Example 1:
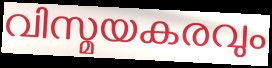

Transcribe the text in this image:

വിസ്മയകരവും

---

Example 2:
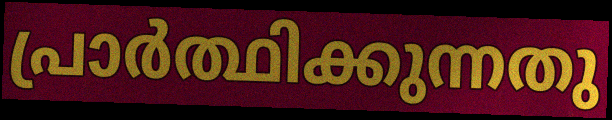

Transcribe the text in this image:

പ്രാർത്ഥിക്കുന്നതു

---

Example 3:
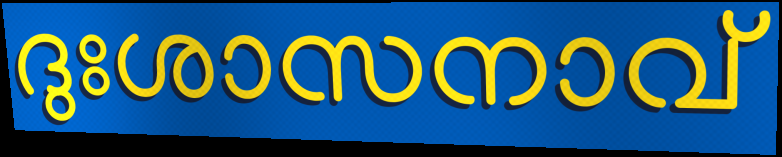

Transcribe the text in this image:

ദുഃശാസനാവ്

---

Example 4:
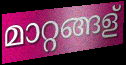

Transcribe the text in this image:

മാറ്റങ്ങള്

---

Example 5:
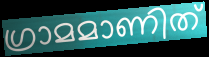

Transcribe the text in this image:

ഗ്രാമമാണിത്